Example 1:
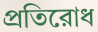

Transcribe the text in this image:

প্রতিরোধ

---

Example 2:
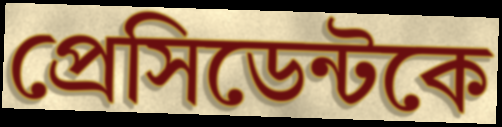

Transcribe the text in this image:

প্রেসিডেন্টকে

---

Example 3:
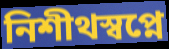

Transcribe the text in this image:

নিশীথস্বপ্নে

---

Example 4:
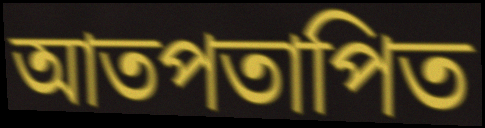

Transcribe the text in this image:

আতপতাপিত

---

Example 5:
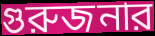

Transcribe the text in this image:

গুরুজনার